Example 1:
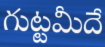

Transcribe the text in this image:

గుట్టమీదే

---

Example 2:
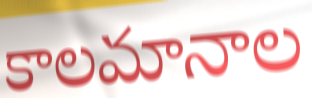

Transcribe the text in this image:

కాలమానాల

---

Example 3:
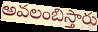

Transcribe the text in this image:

అవలంబిస్తారు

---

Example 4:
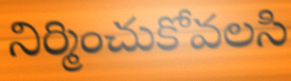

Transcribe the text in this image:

నిర్మించుకోవలసి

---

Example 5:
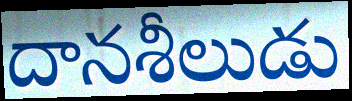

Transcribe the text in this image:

దానశీలుడు